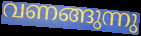
വണങ്ങുന്നു